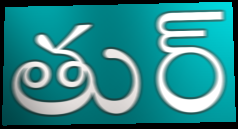
తుర్